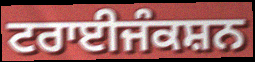
ਟਰਾਈਜੰਕਸ਼ਨ